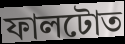
ফালটোত